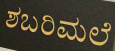
ಶಬರಿಮಲೆ